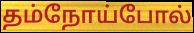
தம்நோய்போல்